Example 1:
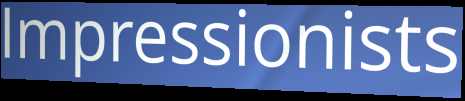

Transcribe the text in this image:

Impressionists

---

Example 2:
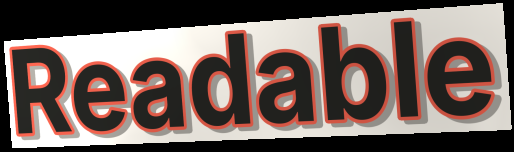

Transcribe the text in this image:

Readable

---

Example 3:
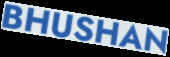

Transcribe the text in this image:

BHUSHAN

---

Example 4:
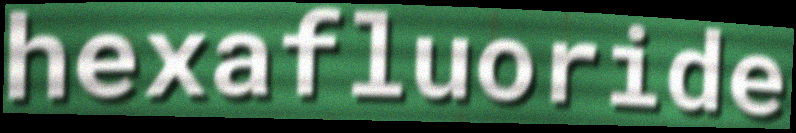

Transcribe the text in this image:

hexafluoride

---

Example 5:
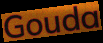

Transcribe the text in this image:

Gouda